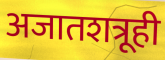
अजातशत्रूही